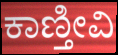
ಕಾಣ್ತೀವಿ